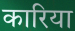
कारिया